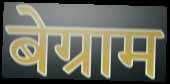
बेग्राम